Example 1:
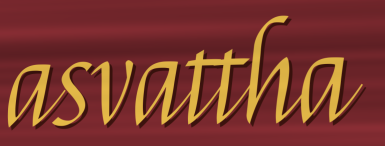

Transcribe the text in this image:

asvattha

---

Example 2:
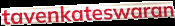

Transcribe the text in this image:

tavenkateswaran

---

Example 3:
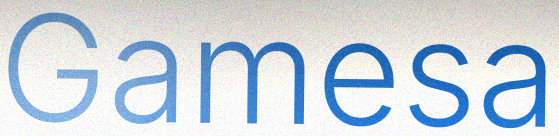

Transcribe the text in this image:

Gamesa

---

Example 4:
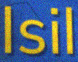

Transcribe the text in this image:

Isil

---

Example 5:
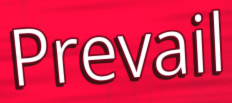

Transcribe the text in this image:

Prevail